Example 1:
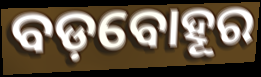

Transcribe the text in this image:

ବଡ଼ବୋହୂର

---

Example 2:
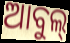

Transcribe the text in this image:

ଆବୁଲ୍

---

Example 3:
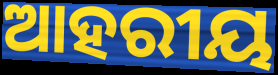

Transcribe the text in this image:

ଆହରୀୟ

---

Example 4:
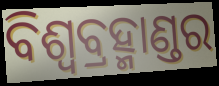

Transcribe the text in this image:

ବିଶ୍ୱବ୍ରହ୍ମାଣ୍ଡର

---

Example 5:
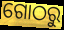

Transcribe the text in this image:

ଗୋଠରୁ